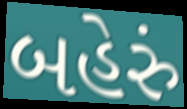
બહેરું